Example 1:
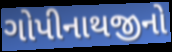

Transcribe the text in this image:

ગોપીનાથજીનો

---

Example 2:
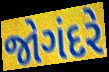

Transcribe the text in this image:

જોગંદરે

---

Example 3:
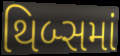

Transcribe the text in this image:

થિબ્સમાં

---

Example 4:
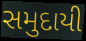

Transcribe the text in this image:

સમુદાયી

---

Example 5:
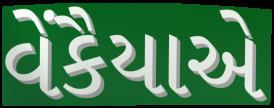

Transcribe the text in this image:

વેંકૈયાએ